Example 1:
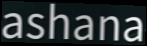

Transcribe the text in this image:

ashana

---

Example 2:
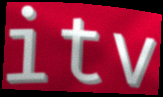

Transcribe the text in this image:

itv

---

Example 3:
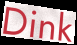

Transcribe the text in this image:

Dink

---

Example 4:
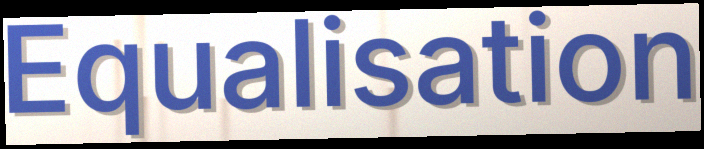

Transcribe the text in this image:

Equalisation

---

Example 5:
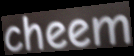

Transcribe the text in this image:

cheem